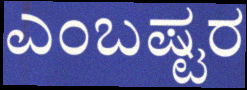
ಎಂಬಷ್ಟರ